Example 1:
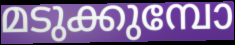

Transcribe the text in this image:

മടുക്കുമ്പോ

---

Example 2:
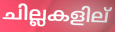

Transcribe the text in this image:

ചില്ലകളില്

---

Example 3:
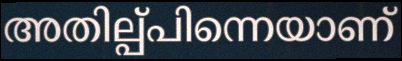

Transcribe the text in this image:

അതില്പ്പിന്നെയാണ്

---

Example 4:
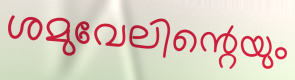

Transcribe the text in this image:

ശമുവേലിന്റെയും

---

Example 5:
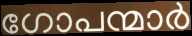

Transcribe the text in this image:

ഗോപന്മാർ